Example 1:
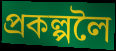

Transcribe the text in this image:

প্ৰকল্পলৈ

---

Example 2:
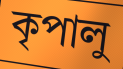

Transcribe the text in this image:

কৃপালু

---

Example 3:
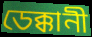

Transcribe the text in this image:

ডেক্কানী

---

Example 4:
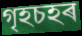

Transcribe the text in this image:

গৃহচহৰ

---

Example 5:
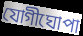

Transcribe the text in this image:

যোগীঘোপা